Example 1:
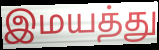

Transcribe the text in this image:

இமயத்து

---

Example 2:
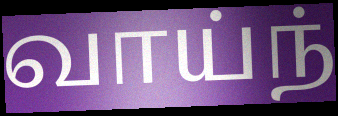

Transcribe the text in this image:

வாய்ந்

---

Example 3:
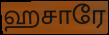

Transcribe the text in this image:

ஹசாரே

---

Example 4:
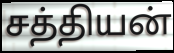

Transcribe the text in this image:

சத்தியன்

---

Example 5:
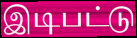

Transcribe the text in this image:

இடிபட்டு